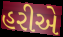
હરીએ